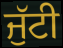
ਜੁੱਟੀ